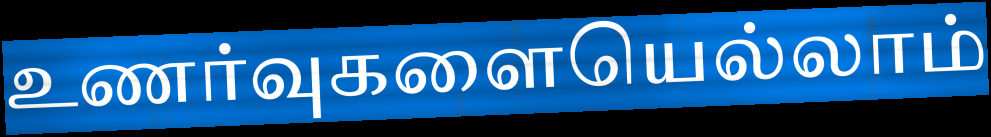
உணர்வுகளையெல்லாம்